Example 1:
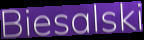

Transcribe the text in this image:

Biesalski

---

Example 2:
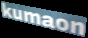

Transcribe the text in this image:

kumaon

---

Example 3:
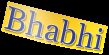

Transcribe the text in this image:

Bhabhi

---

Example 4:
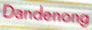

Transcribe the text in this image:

Dandenong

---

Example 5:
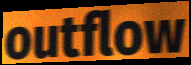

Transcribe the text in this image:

outflow